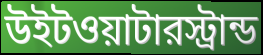
উইটওয়াটারস্ট্রান্ড